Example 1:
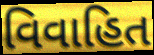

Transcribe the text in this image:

વિવાહિત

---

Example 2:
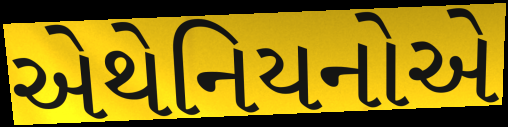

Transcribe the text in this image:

એથેનિયનોએ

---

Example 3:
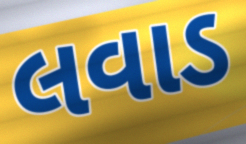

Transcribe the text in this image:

લવાડ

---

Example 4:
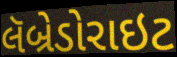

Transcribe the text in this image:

લૅબ્રેડોરાઇટ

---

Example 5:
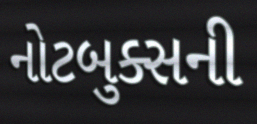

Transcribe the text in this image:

નોટબુક્સની